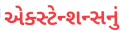
એક્સ્ટેન્શન્સનું